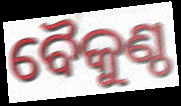
ବୈକୁଣ୍ଠ